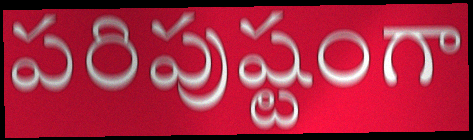
పరిపుష్టంగా